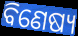
ବିଣେଷ୍ୟ